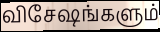
விசேஷங்களும்